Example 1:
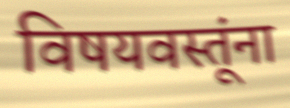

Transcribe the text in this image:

विषयवस्तूंना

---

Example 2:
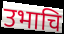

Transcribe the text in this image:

उभाचि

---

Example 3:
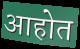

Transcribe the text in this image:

आहोत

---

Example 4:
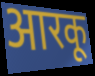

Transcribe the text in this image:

आरकू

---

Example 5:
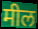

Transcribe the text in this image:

मील